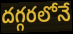
దగ్గరలోనే